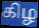
கிழ